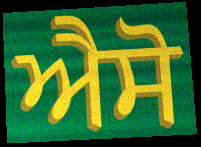
ਐਸੋ